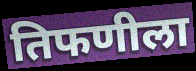
तिफणीला